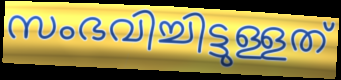
സംഭവിച്ചിട്ടുള്ളത്